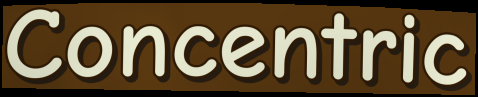
Concentric